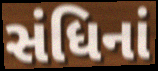
સંધિનાં